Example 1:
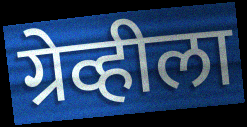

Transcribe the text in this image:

ग्रेव्हीला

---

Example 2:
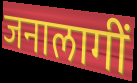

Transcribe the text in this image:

जनालागीं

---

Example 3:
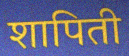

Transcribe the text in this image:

शापिती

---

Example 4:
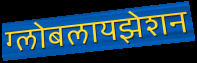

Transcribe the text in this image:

ग्लोबलायझेशन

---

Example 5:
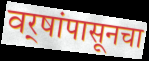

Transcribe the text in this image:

वर्षांपासूनचा